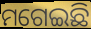
ମଗେଇଛି